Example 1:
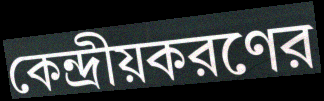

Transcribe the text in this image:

কেন্দ্রীয়করণের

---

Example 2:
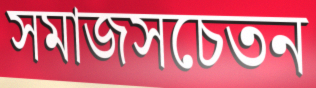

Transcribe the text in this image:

সমাজসচেতন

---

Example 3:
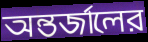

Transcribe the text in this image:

অন্তর্জালের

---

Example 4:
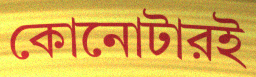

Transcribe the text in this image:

কোনোটারই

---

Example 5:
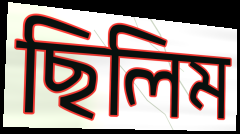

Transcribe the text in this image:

ছিলিম